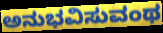
ಅನುಭವಿಸುವಂಥ